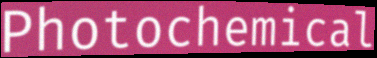
Photochemical